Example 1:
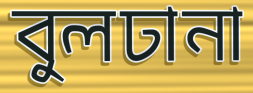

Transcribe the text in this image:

বুলঢানা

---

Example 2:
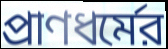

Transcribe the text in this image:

প্রাণধর্মের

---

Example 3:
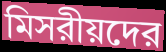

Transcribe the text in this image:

মিসরীয়দের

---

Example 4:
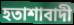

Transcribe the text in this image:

হতাশাবাদী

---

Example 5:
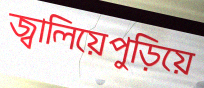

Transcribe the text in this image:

জ্বালিয়েপুড়িয়ে